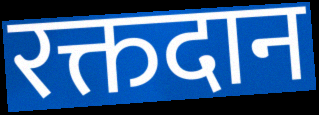
रक्तदान